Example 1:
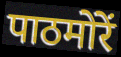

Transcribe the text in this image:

पाठमोरें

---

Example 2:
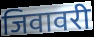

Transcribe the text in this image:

जिवावरी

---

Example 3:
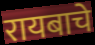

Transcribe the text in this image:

रायबाचे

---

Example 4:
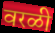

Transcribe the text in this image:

वरळी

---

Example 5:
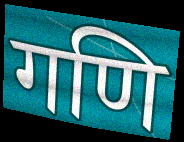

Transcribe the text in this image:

गणि